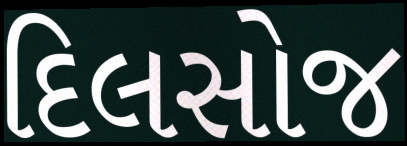
દિલસોજ